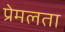
प्रेमलता